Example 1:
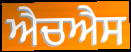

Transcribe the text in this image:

ਐਚਐਸ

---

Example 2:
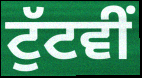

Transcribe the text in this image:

ਟੁੱਟਵੀਂ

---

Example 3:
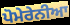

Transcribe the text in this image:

ਪੋਮੇਰੇਨੀਆ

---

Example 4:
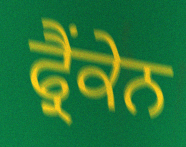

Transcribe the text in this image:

ਫ੍ਰੈਂਕੇਨ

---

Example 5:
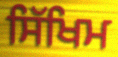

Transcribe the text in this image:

ਸਿੱਖਿਮ